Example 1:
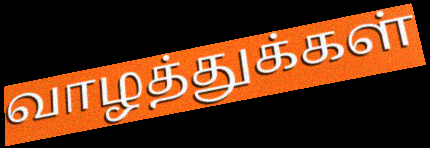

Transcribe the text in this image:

வாழத்துக்கள்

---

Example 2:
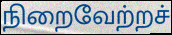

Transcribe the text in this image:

நிறைவேற்றச்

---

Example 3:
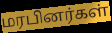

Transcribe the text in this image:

மரபினர்கள்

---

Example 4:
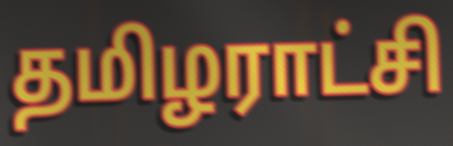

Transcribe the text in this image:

தமிழராட்சி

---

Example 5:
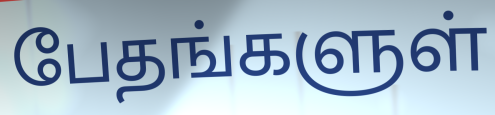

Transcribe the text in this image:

பேதங்களுள்